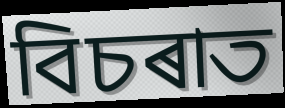
বিচৰাত